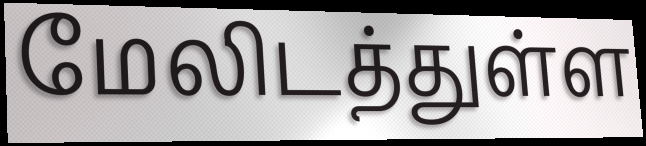
மேலிடத்துள்ள